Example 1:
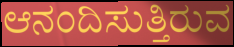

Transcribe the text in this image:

ಆನಂದಿಸುತ್ತಿರುವ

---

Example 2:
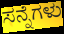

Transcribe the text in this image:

ಸನ್ನೆಗಳು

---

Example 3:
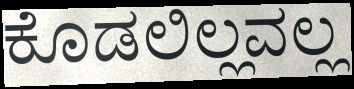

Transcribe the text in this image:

ಕೊಡಲಿಲ್ಲವಲ್ಲ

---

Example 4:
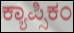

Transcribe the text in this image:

ಕ್ಯಾಪ್ಸಿಕಂ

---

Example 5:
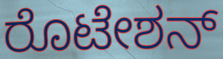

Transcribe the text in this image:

ರೊಟೇಶನ್